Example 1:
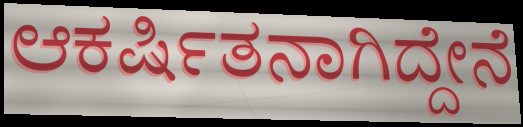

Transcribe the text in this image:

ಆಕರ್ಷಿತನಾಗಿದ್ದೇನೆ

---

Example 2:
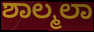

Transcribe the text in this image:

ಶಾಲ್ಮಲಾ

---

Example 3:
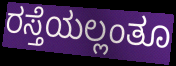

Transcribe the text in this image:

ರಸ್ತೆಯಲ್ಲಂತೂ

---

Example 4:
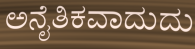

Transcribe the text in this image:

ಅನೈತಿಕವಾದುದು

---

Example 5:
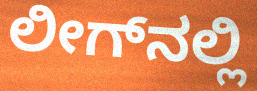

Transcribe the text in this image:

ಲೀಗ್‌ನಲ್ಲಿ